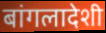
बांगलादेशी